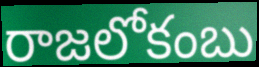
రాజలోకంబు